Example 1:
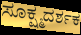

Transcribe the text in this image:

ಸೂಕ್ಷ್ಮದರ್ಶಕ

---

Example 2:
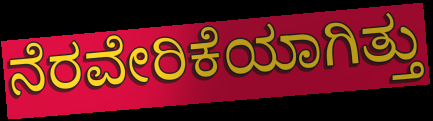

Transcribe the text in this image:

ನೆರವೇರಿಕೆಯಾಗಿತ್ತು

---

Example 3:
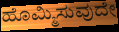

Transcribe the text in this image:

ಹೊಮ್ಮಿಸುವುದೇ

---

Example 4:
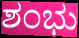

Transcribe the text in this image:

ಶಂಭು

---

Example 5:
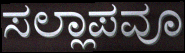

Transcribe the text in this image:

ಸಲ್ಲಾಪವೂ